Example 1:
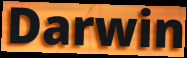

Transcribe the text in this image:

Darwin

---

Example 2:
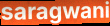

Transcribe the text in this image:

saragwani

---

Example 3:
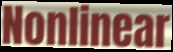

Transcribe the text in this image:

Nonlinear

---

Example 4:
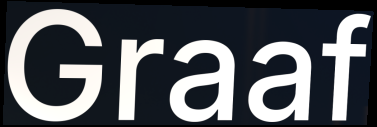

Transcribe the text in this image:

Graaf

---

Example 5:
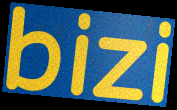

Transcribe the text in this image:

bizi